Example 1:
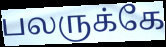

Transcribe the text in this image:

பலருக்கே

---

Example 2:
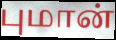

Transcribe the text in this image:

புமான்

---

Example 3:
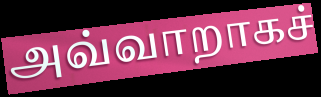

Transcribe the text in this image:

அவ்வாறாகச்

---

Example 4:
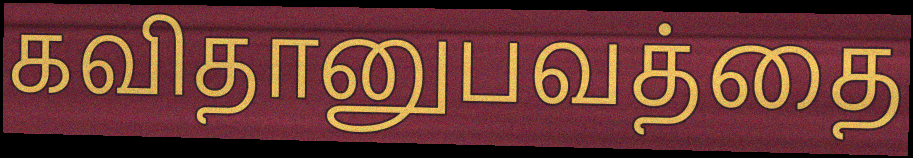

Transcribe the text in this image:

கவிதானுபவத்தை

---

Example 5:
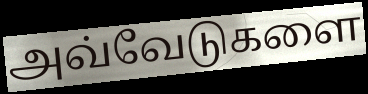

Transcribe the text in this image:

அவ்வேடுகளை